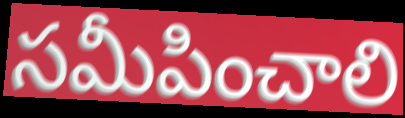
సమీపించాలి